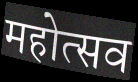
महोत्सव